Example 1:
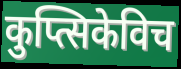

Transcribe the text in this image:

कुप्त्सिकेविच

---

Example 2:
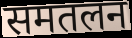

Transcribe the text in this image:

समतलन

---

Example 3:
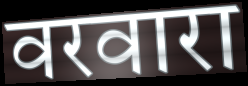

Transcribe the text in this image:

वरवारा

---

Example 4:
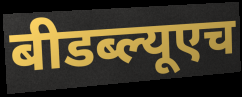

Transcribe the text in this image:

बीडब्ल्यूएच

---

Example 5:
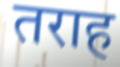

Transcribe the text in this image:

तराह